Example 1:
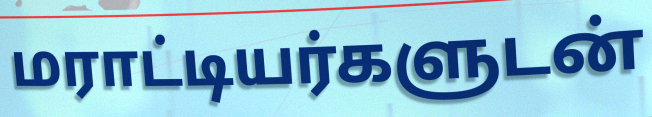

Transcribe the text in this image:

மராட்டியர்களுடன்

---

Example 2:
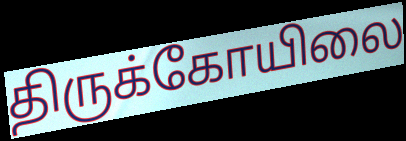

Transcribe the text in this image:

திருக்கோயிலை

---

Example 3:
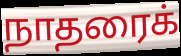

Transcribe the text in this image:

நாதரைக்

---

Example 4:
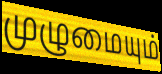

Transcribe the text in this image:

முழுமையும்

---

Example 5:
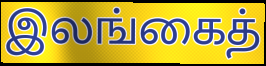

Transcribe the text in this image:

இலங்கைத்